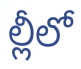
ల్లీలో